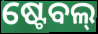
ଷ୍ଟେବଲ୍